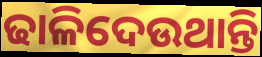
ଢାଳିଦେଉଥାନ୍ତି